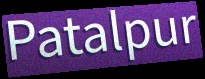
Patalpur